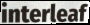
interleaf